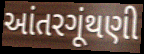
આંતરગૂંથણી